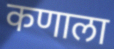
कणाला